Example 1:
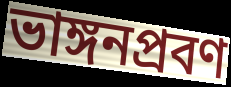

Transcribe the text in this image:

ভাঙ্গনপ্রবণ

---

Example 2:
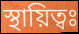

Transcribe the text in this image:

স্থায়িত্বঃ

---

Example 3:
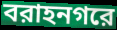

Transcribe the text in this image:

বরাহনগরে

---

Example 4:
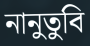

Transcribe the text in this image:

নানুতুবি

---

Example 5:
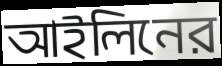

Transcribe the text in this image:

আইলিনের